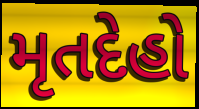
મૃતદેહો